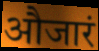
औजारं